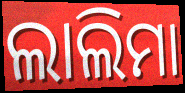
ଲାଲିମା